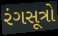
રંગસૂત્રો